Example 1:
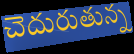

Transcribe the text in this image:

చెదురుతున్న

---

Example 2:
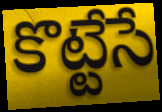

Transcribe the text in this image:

కొట్టేసే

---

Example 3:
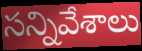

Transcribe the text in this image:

సన్నివేశాలు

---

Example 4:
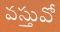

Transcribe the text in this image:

వస్తువో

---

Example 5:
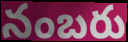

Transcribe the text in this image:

నంబరు